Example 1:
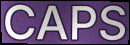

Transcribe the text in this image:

CAPS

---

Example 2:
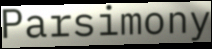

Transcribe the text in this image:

Parsimony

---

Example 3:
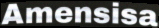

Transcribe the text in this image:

Amensisa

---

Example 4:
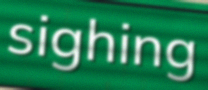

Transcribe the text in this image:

sighing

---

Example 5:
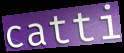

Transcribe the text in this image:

catti